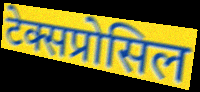
टेक्सप्रोसिल